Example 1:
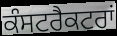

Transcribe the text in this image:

ਕੰਸਟਰੈਕਟਰਾਂ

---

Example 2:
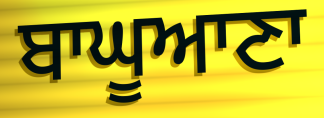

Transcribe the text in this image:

ਬਾਘੂਆਣਾ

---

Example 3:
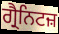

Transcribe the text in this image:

ਗ੍ਰੈਨਿਟਜ਼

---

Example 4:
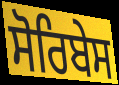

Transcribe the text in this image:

ਸੋਰਿਬੇਸ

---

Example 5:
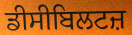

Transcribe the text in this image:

ਡੀਸੀਬਿਲਟਜ਼